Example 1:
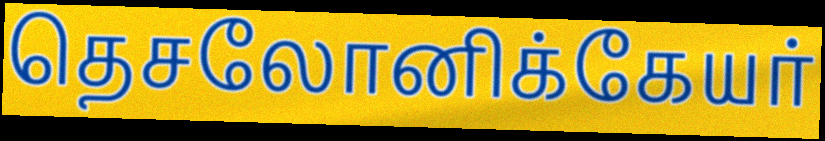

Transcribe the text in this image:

தெசலோனிக்கேயர்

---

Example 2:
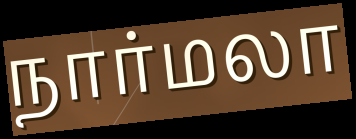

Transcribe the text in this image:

நார்மலா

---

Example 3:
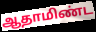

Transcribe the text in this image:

ஆதாமிண்ட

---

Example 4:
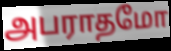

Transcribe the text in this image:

அபராதமோ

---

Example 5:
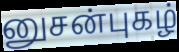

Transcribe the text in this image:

னுசன்புகழ்